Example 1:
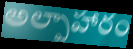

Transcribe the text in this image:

అల్పాహారం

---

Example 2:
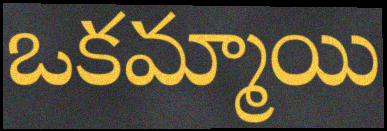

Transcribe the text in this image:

ఒకమ్మాయి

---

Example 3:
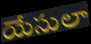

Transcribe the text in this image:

యేసులా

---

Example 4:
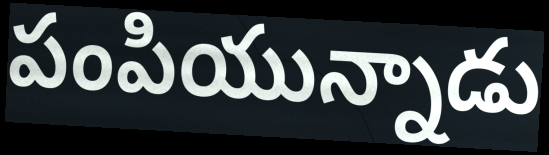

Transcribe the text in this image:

పంపియున్నాడు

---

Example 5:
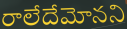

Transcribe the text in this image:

రాలేదేమోనని